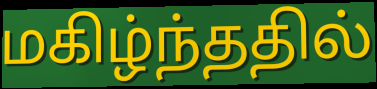
மகிழ்ந்ததில்